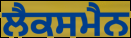
ਲੈਕਸਮੈਨ